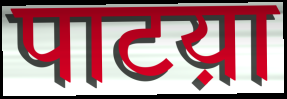
पाटय़ा